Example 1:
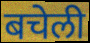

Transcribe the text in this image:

बचेली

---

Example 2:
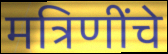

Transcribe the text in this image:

मत्रिणींचे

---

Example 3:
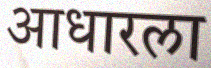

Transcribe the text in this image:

आधारला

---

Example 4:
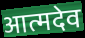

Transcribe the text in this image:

आत्मदेव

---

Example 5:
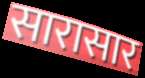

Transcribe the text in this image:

सारासार